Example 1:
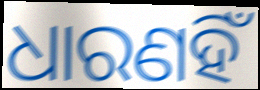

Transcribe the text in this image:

ଧାରଣହିଁ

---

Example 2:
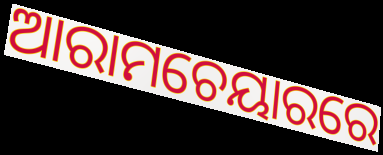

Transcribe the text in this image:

ଆରାମଚେୟାରରେ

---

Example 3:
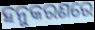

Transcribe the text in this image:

ହନୁକରଣରେ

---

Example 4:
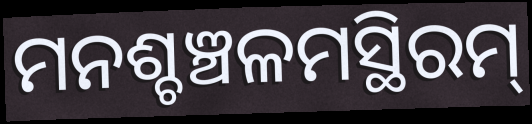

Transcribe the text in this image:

ମନଶ୍ଚଞ୍ଚଳମସ୍ଥିରମ୍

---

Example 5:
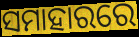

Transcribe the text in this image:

ସମାହାରରେ